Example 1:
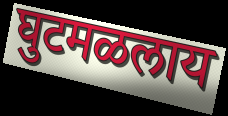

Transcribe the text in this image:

घुटमळलाय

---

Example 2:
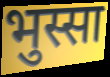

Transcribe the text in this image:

भुस्सा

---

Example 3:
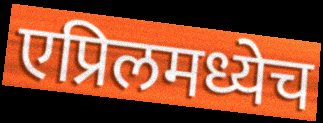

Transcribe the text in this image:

एप्रिलमध्येच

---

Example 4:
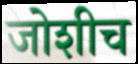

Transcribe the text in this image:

जोशीच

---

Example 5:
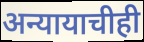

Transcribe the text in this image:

अन्यायाचीही